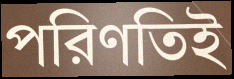
পরিণতিই